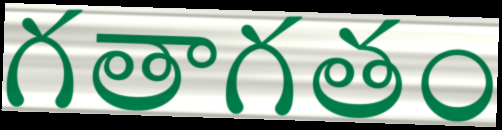
గతాగతం